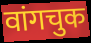
वांगचुक